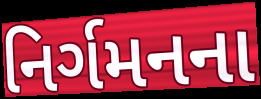
નિર્ગમનના